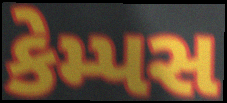
કેમ્પસ